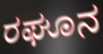
ರಘೂನ